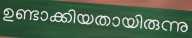
ഉണ്ടാക്കിയതായിരുന്നു